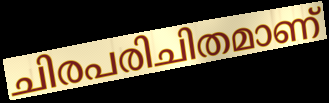
ചിരപരിചിതമാണ്